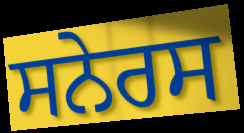
ਸਨੇਰਸ